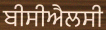
ਬੀਸੀਐਲਸੀ